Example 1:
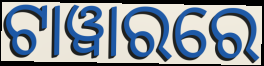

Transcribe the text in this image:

ଟାୱାରରେ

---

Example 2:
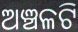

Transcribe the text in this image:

ଅଞ୍ଚଳଟି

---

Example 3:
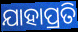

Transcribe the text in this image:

ଯାହାପ୍ରତି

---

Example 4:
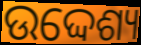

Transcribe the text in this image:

ଉଦ୍ଦେଶ୍ୟ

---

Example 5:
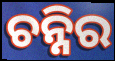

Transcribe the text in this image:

ଚନ୍ନିର